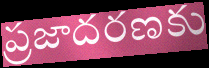
ప్రజాదరణకు